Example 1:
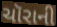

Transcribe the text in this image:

ચૉરાની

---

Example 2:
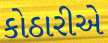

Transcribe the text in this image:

કોઠારીએ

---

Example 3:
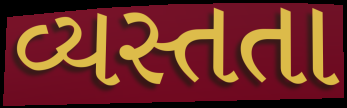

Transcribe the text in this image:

વ્યસ્તતા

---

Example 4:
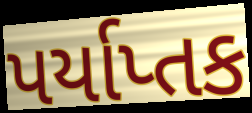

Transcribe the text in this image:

પર્યાપ્તક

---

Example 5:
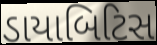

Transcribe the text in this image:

ડાયાબિટિસ